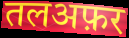
तलअफ़र